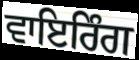
ਵਾਇਰਿੰਗ